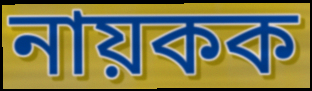
নায়কক